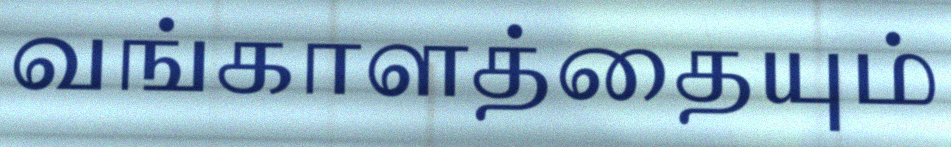
வங்காளத்தையும்